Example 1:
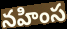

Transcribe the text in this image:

నహింస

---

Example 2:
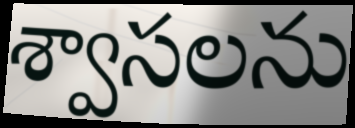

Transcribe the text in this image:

శ్వాసలను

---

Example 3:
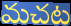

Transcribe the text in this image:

మచట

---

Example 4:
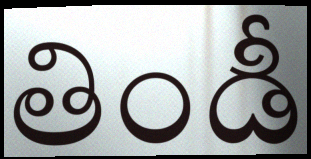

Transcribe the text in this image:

తిండీ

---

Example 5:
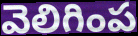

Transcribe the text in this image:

వెలిగింప